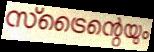
സ്ട്രൈന്റെയും